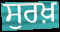
ਸੁਰਖ਼